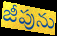
జీపును